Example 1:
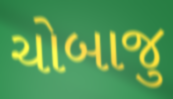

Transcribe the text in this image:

ચોબાજુ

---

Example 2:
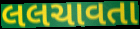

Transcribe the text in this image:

લલચાવતા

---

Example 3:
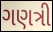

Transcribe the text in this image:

ગણત્રી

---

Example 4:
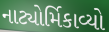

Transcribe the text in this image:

નાટ્યોર્મિકાવ્યો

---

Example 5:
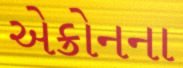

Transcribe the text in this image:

એક્રોનના